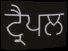
ਟ੍ਰੈਪਲ